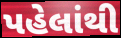
પહેલાંથી